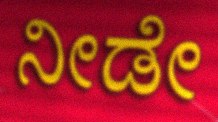
ನೀಡೇ